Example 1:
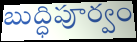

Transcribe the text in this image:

బుద్ధిపూర్వం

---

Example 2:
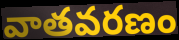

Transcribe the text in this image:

వాతవరణం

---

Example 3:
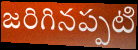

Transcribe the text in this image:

జరిగినప్పటి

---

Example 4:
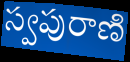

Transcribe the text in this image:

స్వపురాణి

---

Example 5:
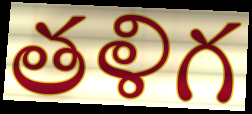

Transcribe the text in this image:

తళిగ